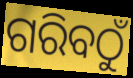
ଗରିବଠୁଁ